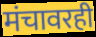
मंचावरही